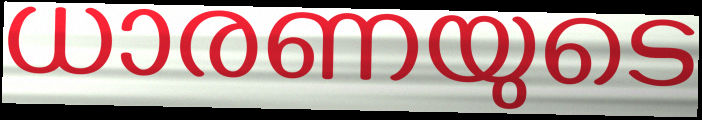
ധാരണയുടെ